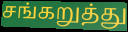
சங்கறுத்து